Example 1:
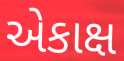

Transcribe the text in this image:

એકાક્ષ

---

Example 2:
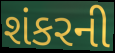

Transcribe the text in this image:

શંકરની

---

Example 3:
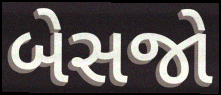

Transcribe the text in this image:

બેસજો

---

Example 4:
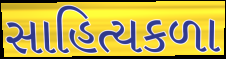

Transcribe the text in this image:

સાહિત્યકળા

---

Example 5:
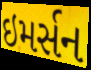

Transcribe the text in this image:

ઇમર્સન